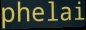
phelai